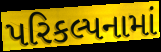
પરિકલ્પનામાં